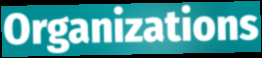
Organizations